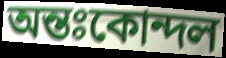
অন্তঃকোন্দল